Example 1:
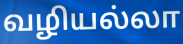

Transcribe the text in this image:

வழியல்லா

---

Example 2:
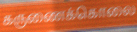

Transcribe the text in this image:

கருணைக்கொலை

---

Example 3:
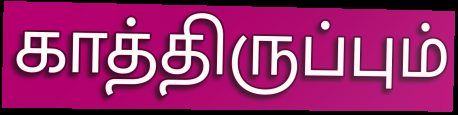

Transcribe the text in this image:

காத்திருப்பும்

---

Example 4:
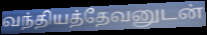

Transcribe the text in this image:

வந்தியத்தேவனுடன்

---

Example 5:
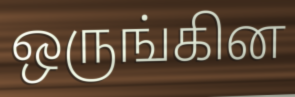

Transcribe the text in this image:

ஒருங்கின